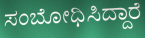
ಸಂಬೋಧಿಸಿದ್ದಾರೆ